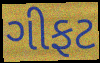
ગીફટ